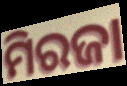
ମିରଜା